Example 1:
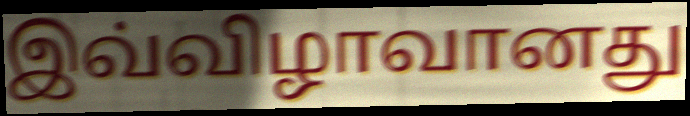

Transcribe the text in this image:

இவ்விழாவானது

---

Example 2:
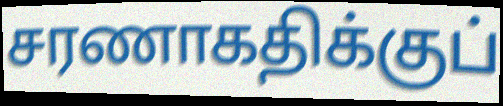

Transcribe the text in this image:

சரணாகதிக்குப்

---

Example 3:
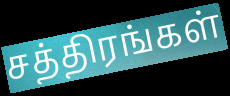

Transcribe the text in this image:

சத்திரங்கள்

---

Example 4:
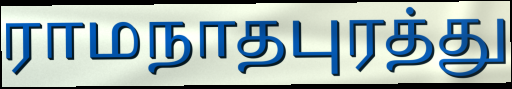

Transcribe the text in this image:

ராமநாதபுரத்து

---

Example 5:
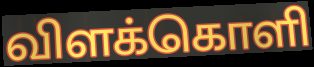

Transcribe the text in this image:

விளக்கொளி